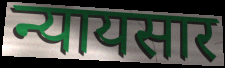
न्यायसार